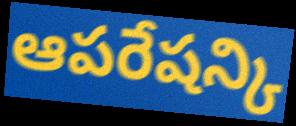
ఆపరేషన్కి